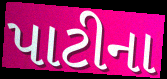
પાટીના